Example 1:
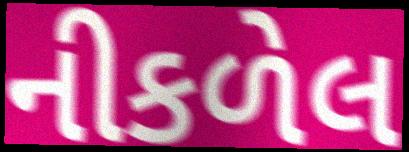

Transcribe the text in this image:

નીકળેલ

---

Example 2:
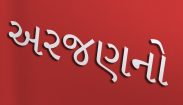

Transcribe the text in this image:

અરજણનો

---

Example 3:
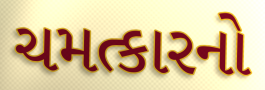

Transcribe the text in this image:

ચમત્કારનો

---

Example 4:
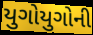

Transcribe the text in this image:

યુગોયુગોની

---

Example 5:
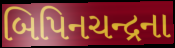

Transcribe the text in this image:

બિપિનચન્દ્રના